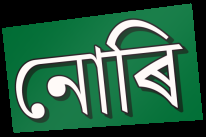
নোৰি